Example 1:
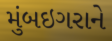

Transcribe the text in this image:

મુંબઇગરાને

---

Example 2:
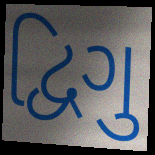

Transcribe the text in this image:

દ્વિગુ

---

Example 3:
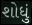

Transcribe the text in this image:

શોધું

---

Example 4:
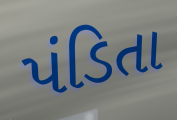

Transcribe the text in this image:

પંડિતા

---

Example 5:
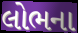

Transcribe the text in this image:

લોભના